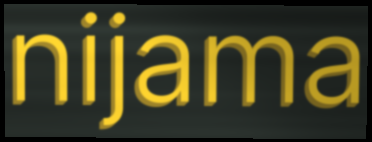
nijama